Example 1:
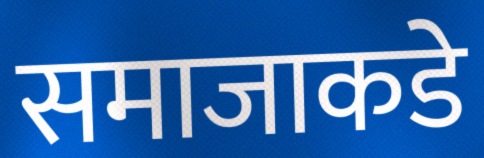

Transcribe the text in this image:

समाजाकडे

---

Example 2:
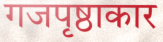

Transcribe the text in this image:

गजपृष्ठाकार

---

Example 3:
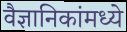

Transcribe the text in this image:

वैज्ञानिकांमध्ये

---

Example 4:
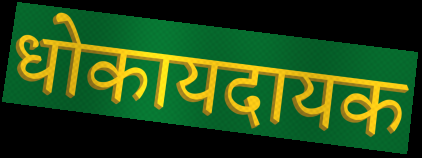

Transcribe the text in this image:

धोकायदायक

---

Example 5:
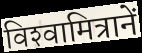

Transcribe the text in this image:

विश्वामित्रानें